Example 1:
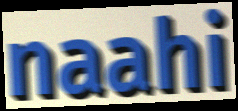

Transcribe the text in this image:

naahi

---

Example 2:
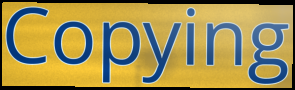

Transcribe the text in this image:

Copying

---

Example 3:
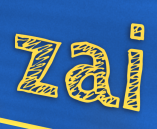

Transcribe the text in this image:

zai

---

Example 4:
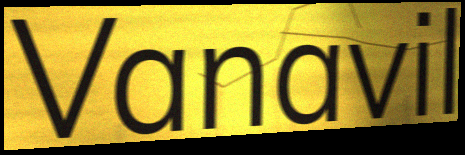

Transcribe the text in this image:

Vanavil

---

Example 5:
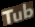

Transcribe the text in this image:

Tub